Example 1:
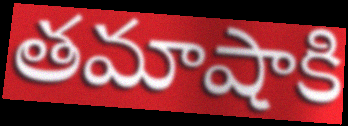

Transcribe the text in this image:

తమాషాకి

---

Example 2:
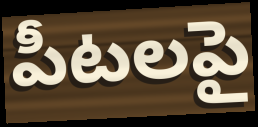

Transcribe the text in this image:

పీటలపై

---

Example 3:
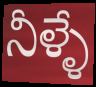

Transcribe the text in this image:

నీళ్ళే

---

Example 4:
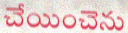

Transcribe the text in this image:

చేయించెను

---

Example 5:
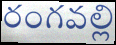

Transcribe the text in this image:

రంగవల్లి